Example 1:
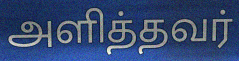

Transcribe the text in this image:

அளித்தவர்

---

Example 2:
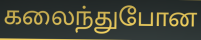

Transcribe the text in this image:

கலைந்துபோன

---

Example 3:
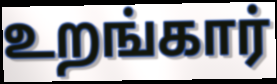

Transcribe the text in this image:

உறங்கார்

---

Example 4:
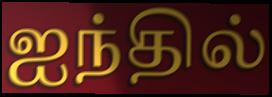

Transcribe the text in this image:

ஐந்தில்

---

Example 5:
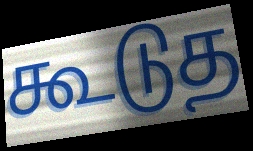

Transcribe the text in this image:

கூடுத